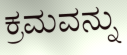
ಕ್ರಮವನ್ನು